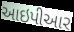
આઇપીઆર